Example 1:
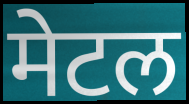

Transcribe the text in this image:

मेटल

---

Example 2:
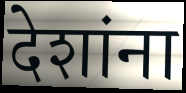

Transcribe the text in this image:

देशांना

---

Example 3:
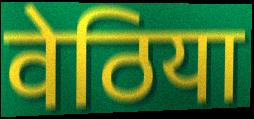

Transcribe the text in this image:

वेठिया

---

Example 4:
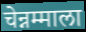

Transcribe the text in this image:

चेन्नम्माला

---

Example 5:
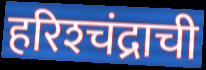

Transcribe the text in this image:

हरिश्‍चंद्राची